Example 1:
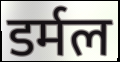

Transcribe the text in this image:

डर्मल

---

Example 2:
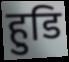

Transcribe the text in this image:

हुडि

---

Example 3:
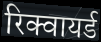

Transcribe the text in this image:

रिक्वायर्ड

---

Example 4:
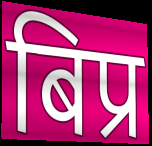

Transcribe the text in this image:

बिप्र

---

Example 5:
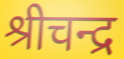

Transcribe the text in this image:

श्रीचन्द्र